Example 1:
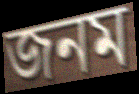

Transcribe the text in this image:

জনম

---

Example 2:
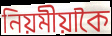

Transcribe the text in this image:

নিয়মীয়াকৈ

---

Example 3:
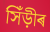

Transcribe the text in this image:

সিঁড়ীৰ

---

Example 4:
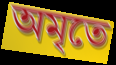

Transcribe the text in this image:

অমৃতে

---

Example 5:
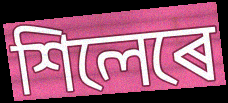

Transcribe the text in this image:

শিলেৰে